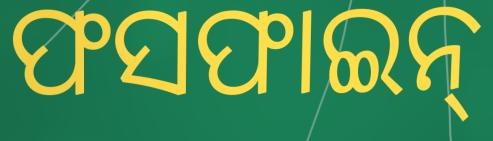
ଫସଫାଇନ୍